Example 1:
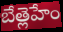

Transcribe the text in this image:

బేత్లెహేం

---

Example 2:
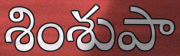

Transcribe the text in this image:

శింశుపా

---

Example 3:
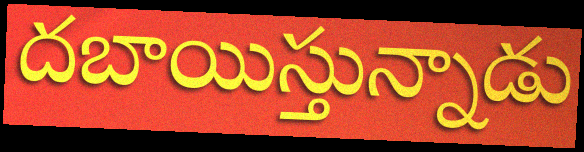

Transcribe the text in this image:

దబాయిస్తున్నాడు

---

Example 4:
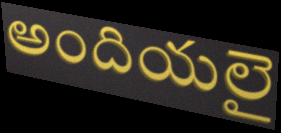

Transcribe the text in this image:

అందియలై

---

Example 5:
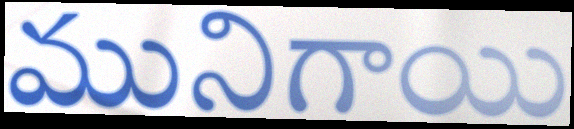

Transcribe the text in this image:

మునిగాయి